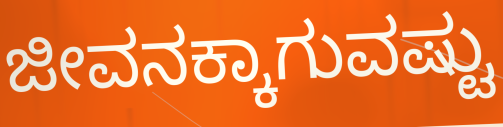
ಜೀವನಕ್ಕಾಗುವಷ್ಟು